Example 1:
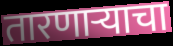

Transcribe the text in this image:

तारणाऱ्याचा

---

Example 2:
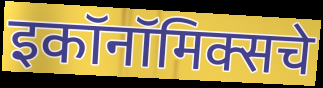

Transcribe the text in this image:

इकॉनॉमिक्सचे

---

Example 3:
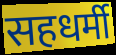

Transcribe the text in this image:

सहधर्मी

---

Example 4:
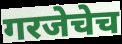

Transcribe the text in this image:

गरजेचेच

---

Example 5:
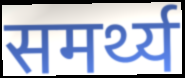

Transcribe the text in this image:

समर्थ्य